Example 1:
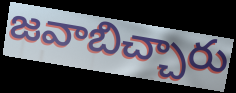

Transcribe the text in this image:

జవాబిచ్చారు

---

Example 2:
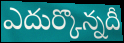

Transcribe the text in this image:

ఎదుర్కొన్నదీ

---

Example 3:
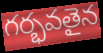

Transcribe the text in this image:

గర్భవతైన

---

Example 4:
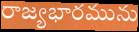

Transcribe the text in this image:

రాజ్యభారమును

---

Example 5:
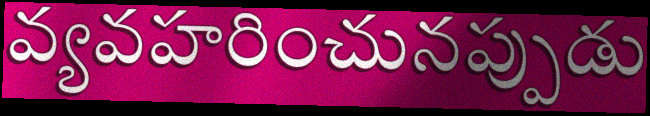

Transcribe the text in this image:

వ్యవహరించునప్పుడు